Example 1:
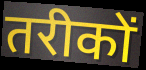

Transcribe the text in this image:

तरीकों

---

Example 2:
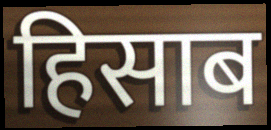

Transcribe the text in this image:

हिसाब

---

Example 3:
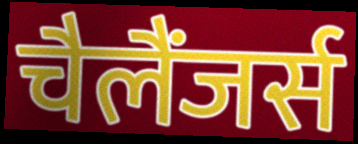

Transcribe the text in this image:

चैलैंजर्स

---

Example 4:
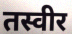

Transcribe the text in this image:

तस्वीर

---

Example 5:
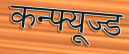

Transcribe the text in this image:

कन्फ्यूज्ड